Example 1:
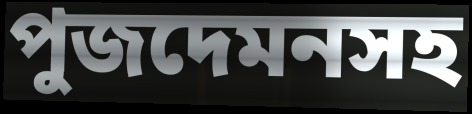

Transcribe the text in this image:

পুজদেমনসহ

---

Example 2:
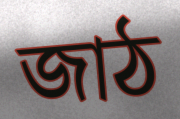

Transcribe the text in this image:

জাঠ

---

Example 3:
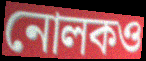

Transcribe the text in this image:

নোলকও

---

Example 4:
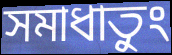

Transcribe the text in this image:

সমাধাতুং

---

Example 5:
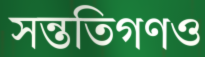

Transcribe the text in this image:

সন্ততিগণও